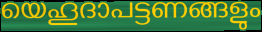
യെഹൂദാപട്ടണങ്ങളും